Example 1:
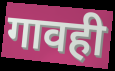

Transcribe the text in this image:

गावही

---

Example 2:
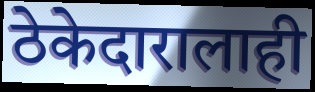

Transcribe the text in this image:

ठेकेदारालाही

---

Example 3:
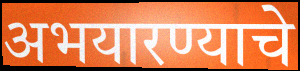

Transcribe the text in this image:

अभयारण्याचे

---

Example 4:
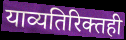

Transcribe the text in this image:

याव्यतिरिक्तही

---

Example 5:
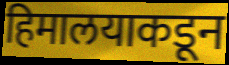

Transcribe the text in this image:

हिमालयाकडून